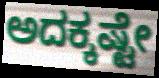
ಅದಕ್ಕಷ್ಟೇ